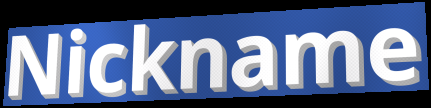
Nickname